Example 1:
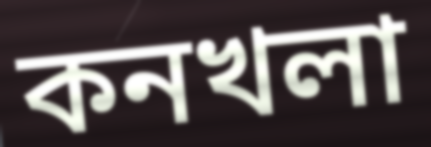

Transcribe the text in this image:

কনখলা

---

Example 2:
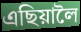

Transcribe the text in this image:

এছিয়ালৈ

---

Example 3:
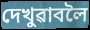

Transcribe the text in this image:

দেখুৱাবলৈ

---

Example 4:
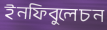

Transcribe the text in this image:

ইনফিবুলেচন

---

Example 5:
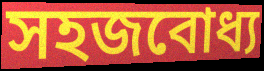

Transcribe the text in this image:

সহজবোধ্য